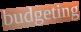
budgeting